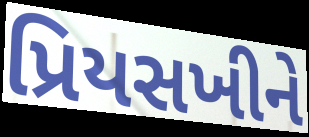
પ્રિયસખીને